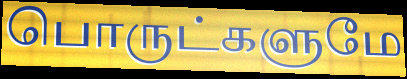
பொருட்களுமே